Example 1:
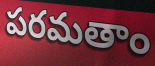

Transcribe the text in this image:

పరమతాం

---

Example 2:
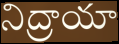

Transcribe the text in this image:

నిద్రాయా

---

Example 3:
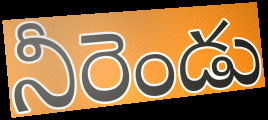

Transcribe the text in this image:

నీరెండు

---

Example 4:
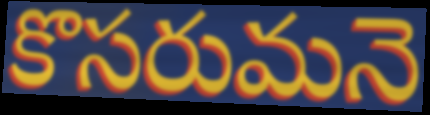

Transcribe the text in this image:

కొసరుమనె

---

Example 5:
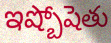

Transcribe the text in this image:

ఇష్బోషెతు